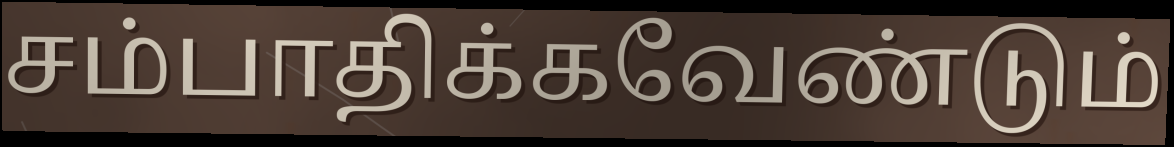
சம்பாதிக்கவேண்டும்